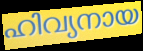
ഹിവ്യനായ